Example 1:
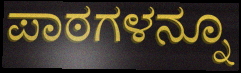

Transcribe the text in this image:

ಪಾಠಗಳನ್ನೂ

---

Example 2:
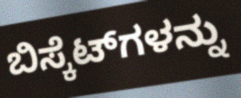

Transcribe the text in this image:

ಬಿಸ್ಕೆಟ್‌ಗಳನ್ನು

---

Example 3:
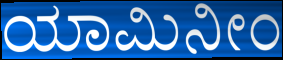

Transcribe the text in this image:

ಯಾಮಿನೀಂ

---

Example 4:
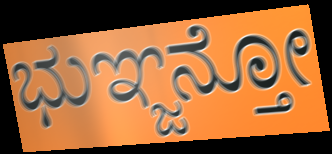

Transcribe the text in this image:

ಭುಞ್ಜನ್ತೋ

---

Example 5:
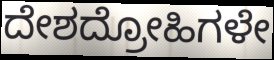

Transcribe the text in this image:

ದೇಶದ್ರೋಹಿಗಳೇ